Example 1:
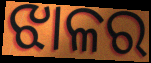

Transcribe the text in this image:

ଝାଳର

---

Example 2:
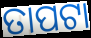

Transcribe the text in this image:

ତାପଟା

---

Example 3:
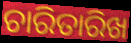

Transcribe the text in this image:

ଚାରିତାରିଖ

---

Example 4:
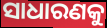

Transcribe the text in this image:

ସାଧାରଣକୁ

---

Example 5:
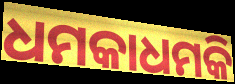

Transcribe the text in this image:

ଧମକାଧମକି